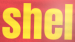
shel